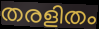
തരളിതം